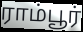
ராம்பூர்